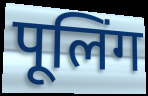
पूलिंग